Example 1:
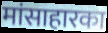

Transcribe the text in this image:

मांसाहारका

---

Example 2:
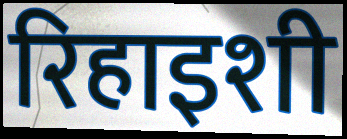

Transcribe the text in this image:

रिहाइशी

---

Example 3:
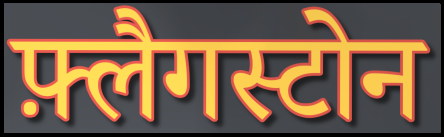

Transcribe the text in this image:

फ़्लैगस्टोन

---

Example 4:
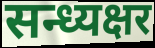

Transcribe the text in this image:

सन्ध्यक्षर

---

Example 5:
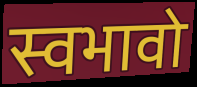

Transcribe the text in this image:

स्वभावो